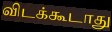
விடக்கூடாது